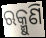
ଋକ୍ମୁଣି